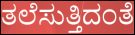
ತಲೆಸುತ್ತಿದಂತೆ